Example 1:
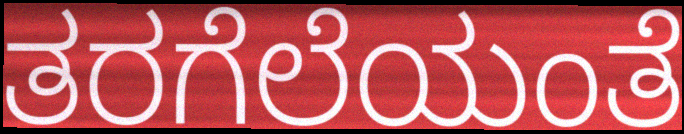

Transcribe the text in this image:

ತರಗೆಲೆಯಂತೆ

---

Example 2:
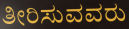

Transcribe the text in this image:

ತೀರಿಸುವವರು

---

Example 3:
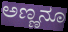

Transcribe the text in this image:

ಅಣ್ಣನೂ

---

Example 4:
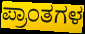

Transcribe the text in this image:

ಪ್ರಾಂತಗಳ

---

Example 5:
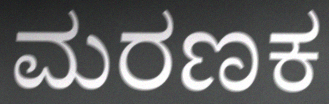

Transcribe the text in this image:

ಮರಣಕ